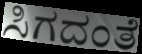
ಸಿಗದಂತೆ